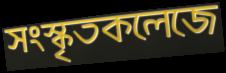
সংস্কৃতকলেজে